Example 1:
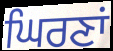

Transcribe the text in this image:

ਘਿਰਣਾਂ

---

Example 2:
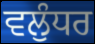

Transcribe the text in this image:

ਵਲੁੰਧਰ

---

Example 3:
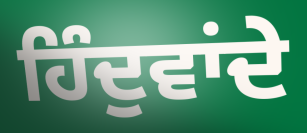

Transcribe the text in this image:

ਹਿੰਦੁਵਾਂਦੇ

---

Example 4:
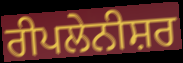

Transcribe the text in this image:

ਰੀਪਲੇਨੀਸ਼ਰ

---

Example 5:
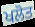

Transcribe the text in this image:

ਖਲੋਤ